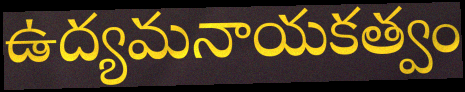
ఉద్యమనాయకత్వం